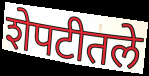
शेपटीतले